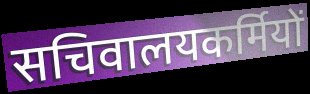
सचिवालयकर्मियों